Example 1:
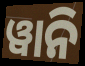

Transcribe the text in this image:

ୱାନି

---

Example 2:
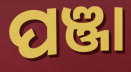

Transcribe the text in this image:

ପଞ୍ଜା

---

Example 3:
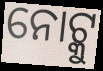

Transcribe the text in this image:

ନୋଟ୍କୁ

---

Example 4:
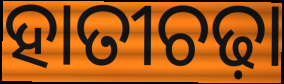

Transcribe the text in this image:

ହାତୀଚଢ଼ା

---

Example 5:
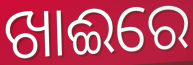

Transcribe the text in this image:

ଖାଈରେ